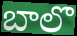
బాలొ